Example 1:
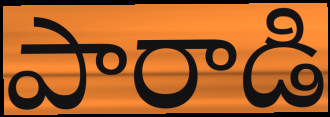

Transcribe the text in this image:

పారాడి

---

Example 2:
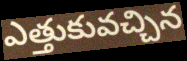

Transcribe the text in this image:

ఎత్తుకువచ్చిన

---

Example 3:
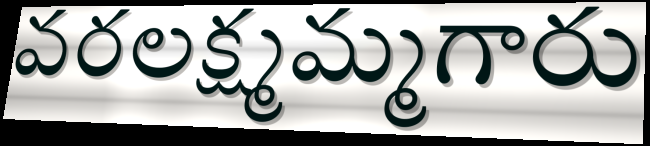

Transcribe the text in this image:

వరలక్ష్మమ్మగారు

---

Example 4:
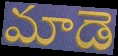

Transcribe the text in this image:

మాడె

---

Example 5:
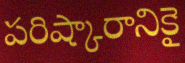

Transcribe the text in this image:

పరిష్కారానికై